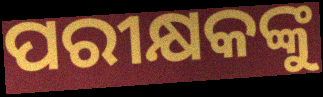
ପରୀକ୍ଷକଙ୍କୁ